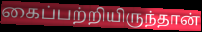
கைப்பற்றியிருந்தான்